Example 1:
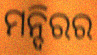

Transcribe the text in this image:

ମନ୍ଦିରର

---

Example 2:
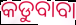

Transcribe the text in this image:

କଡୁବାବା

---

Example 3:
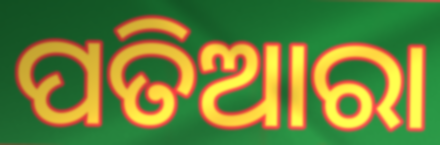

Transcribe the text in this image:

ପତିଆରା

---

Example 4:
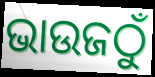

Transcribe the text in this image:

ଭାଉଜଠୁଁ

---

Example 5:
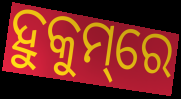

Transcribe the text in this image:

ହୁକୁମ୍‌ରେ